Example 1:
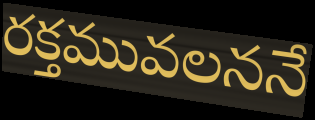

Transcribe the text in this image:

రక్తమువలననే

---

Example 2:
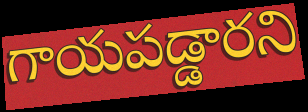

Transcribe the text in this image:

గాయపడ్డారని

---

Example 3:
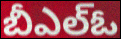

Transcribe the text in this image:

బీఎల్ఓ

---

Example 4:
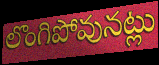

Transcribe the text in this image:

లొంగిపోవునట్లు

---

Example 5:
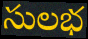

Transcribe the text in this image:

సులభ